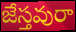
జేస్తవురా